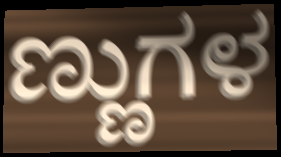
ಣ್ಣುಗಳ